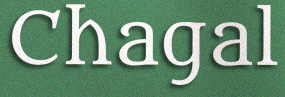
Chagal